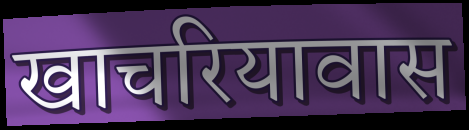
खाचरियावास